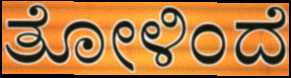
ತೋಳಿಂದೆ